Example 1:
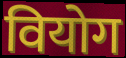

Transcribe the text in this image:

वियोग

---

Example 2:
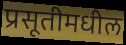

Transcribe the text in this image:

प्रसूतीमधील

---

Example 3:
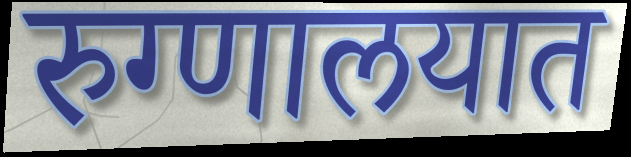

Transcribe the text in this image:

रुग्णालयात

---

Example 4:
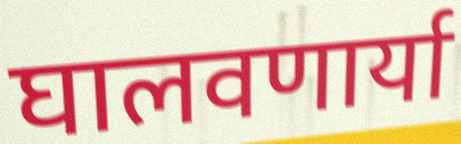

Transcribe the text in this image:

घालवणार्या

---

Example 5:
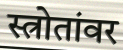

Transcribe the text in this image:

स्त्रोतांवर